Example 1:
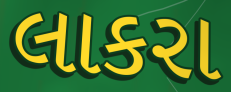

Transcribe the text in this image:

લાકરા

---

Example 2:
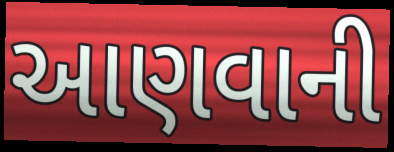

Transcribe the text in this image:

આણવાની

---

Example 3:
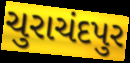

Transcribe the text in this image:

ચુરાચંદપુર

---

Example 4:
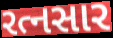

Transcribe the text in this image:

રત્નસાર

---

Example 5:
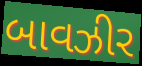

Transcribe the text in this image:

બાવઝીર